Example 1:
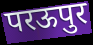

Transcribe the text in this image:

परऊपुर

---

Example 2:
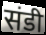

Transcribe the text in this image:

संडी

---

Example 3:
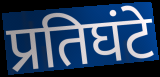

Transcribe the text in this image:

प्रतिघंटे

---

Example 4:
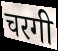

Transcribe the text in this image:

चरगी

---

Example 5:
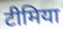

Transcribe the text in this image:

टीमिया